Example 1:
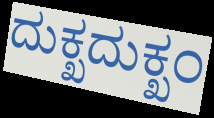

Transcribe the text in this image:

ದುಕ್ಖದುಕ್ಖಂ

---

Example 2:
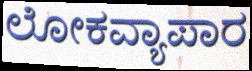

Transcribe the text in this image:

ಲೋಕವ್ಯಾಪಾರ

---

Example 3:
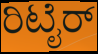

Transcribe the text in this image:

ರಿಟೈರ್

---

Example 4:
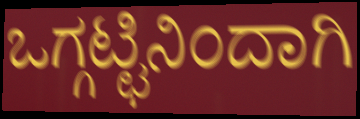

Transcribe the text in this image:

ಒಗ್ಗಟ್ಟಿನಿಂದಾಗಿ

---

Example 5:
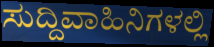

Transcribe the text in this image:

ಸುದ್ದಿವಾಹಿನಿಗಳಲ್ಲಿ